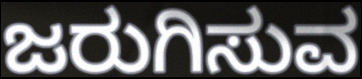
ಜರುಗಿಸುವ